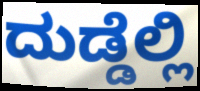
ದುಡ್ಡೆಲ್ಲಿ